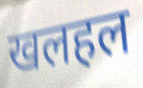
खलहल